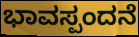
ಭಾವಸ್ಪಂದನೆ